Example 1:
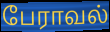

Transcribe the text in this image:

பேராவல்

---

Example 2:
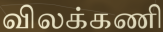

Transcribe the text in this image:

விலக்கணி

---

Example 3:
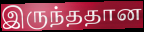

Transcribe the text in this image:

இருந்ததான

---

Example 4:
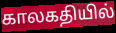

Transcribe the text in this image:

காலகதியில்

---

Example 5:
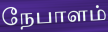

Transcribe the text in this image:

நேபாளம்